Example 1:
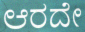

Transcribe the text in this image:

ಆರದೇ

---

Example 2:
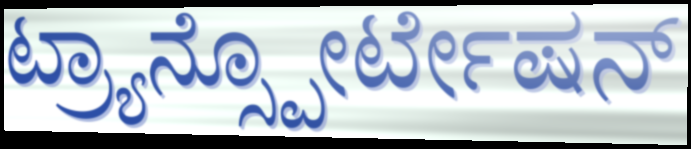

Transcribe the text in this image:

ಟ್ರ್ಯಾನ್ಸ್ಪೋರ್ಟೇಷನ್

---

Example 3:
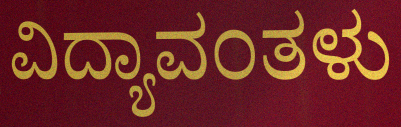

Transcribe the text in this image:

ವಿದ್ಯಾವಂತಳು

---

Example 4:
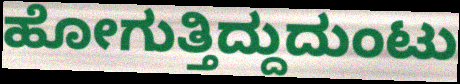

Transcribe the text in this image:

ಹೋಗುತ್ತಿದ್ದುದುಂಟು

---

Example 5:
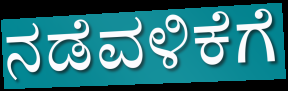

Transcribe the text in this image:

ನಡೆವಳಿಕೆಗೆ